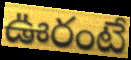
ఊరంటే